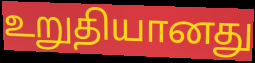
உறுதியானது